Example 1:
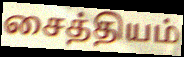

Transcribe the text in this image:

சைத்தியம்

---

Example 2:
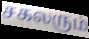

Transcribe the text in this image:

சகலரும்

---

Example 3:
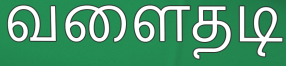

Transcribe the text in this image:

வளைதடி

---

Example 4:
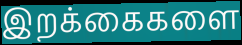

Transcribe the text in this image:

இறக்கைகளை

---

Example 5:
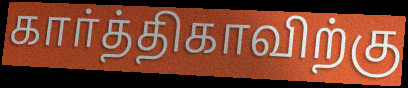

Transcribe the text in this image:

கார்த்திகாவிற்கு